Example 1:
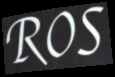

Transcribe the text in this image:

ROS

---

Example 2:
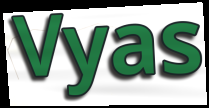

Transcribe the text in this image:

Vyas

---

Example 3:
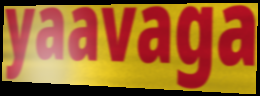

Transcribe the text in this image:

yaavaga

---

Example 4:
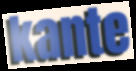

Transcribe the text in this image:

kante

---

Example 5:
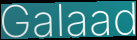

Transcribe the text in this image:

Galaad